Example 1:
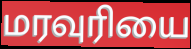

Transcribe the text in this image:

மரவுரியை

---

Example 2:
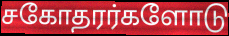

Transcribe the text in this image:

சகோதரர்களோடு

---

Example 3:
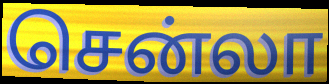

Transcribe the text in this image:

சென்லா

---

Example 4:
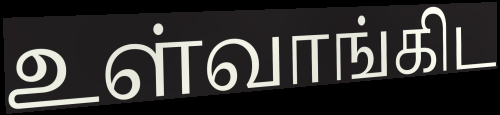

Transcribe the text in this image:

உள்வாங்கிட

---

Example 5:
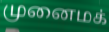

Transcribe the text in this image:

முனைமக்